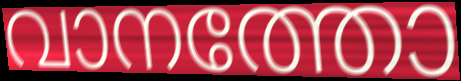
വാനത്തോ